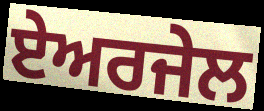
ਏਅਰਜੇਲ